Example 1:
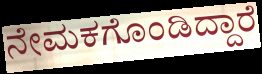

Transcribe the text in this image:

ನೇಮಕಗೊಂಡಿದ್ದಾರೆ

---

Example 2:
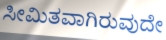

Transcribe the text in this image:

ಸೀಮಿತವಾಗಿರುವುದೇ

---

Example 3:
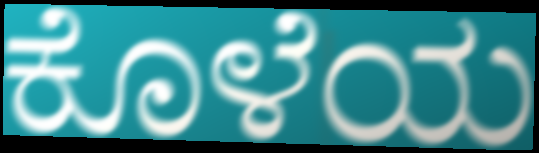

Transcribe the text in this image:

ಕೊಳೆಯ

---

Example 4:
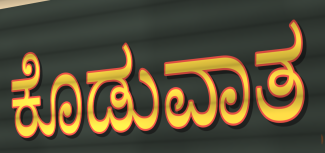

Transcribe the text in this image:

ಕೊಡುವಾತ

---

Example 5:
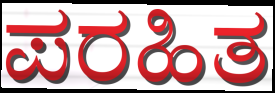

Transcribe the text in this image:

ಪರಹಿತ